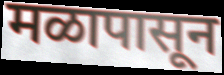
मळापासून